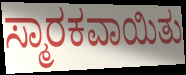
ಸ್ಮಾರಕವಾಯಿತು